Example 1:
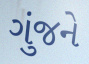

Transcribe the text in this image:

ગુંજને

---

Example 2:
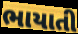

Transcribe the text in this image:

ભાયાતી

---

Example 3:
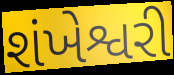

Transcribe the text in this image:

શંખેશ્વરી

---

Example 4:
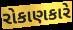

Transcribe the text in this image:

રોકાણકારે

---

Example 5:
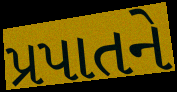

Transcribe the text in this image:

પ્રપાતને